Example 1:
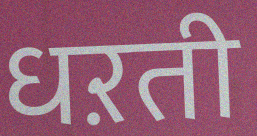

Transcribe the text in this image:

धऱती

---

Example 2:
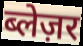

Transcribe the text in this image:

ब्लेज़र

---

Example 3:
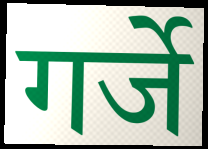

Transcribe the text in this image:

गर्जे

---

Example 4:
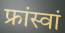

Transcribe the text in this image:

फ्रांस्वां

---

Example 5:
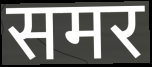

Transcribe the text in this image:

समर